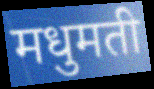
मधुमती